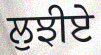
ਲੁਝੀਏ